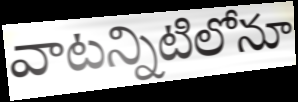
వాటన్నిటిలోనూ